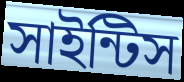
সাইন্টিস